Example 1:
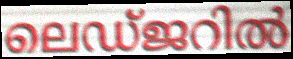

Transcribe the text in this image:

ലെഡ്ജറിൽ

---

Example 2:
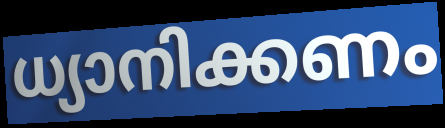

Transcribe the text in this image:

ധ്യാനിക്കണം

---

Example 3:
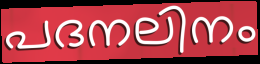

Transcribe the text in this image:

പദനലിനം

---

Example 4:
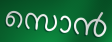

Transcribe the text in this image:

സൊൻ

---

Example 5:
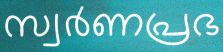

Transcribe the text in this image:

സ്വർണപ്രഭ